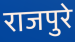
राजपुरे